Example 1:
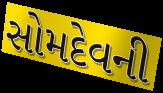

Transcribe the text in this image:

સોમદેવની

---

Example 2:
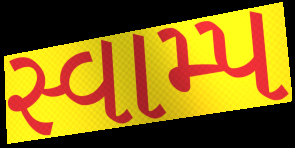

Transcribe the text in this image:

સ્વામ્પ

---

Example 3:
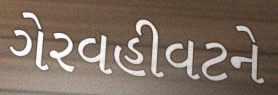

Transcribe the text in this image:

ગેરવહીવટને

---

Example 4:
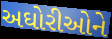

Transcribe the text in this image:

અઘોરીઓને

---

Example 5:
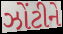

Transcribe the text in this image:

ઝોંટીને